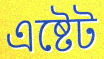
এষ্টেট